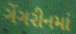
ગેંગરીનમાં